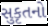
સુકૃતનો